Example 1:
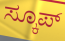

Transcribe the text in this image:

ಸ್ಕೂಪ್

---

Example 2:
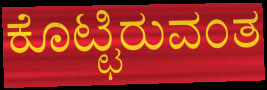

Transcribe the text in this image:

ಕೊಟ್ಟಿರುವಂತ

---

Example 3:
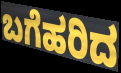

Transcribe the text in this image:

ಬಗೆಹರಿದ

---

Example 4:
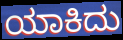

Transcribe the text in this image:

ಯಾಕಿದು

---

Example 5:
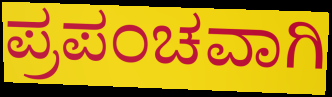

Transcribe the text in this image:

ಪ್ರಪಂಚವಾಗಿ